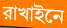
রাখাইনে